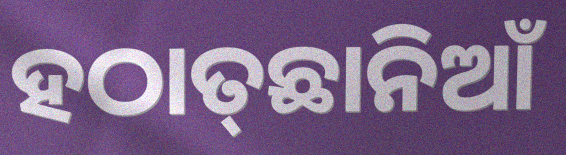
ହଠାତ୍‌ଛାନିଆଁ